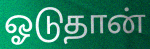
ஓடுதான்